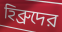
হিব্রুদের